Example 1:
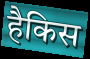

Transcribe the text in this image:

हैकिस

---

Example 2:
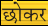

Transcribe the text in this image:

छोकर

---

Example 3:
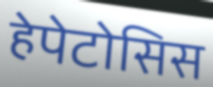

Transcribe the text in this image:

हेपेटोसिस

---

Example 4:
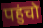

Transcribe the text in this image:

पहुंचो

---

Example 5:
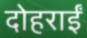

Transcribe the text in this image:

दोहराईं